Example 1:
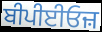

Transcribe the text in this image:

ਬੀਪੀਈਓਜ਼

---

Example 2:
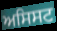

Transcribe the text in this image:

ਅਸਿਸਟ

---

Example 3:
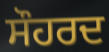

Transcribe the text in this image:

ਸੌਹਰਦ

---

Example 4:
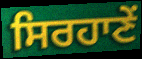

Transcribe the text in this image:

ਸਿਰਹਾਣੇਂ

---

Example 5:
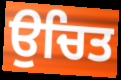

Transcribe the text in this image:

ਉਚਿਤ